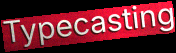
Typecasting